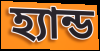
হ্যান্ড